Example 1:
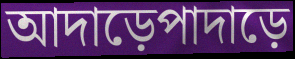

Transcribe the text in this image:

আদাড়েপাদাড়ে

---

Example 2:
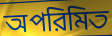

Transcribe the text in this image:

অপরিমিত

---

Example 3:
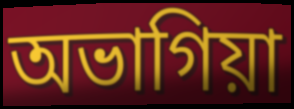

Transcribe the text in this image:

অভাগিয়া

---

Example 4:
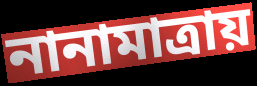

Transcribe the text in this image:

নানামাত্রায়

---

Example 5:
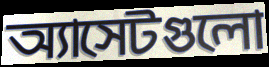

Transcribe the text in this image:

অ্যাসেটগুলো